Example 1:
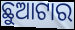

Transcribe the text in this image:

ଛୁଆଟାର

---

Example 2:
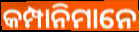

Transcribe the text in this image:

କମ୍ପାନିମାନେ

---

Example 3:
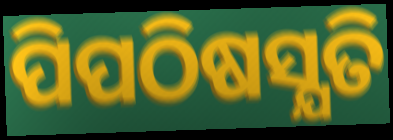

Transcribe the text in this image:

ପିପଠିଷସ୍ଯତି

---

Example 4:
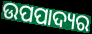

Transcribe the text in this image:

ଉପପାଦ୍ୟର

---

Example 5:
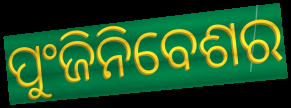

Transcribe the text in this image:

ପୁଂଜିନିବେଶର